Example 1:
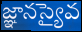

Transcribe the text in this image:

జ్ఞానస్యైవ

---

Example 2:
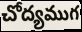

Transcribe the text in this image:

చోద్యముగ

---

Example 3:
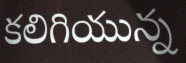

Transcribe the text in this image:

కలిగియున్న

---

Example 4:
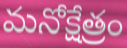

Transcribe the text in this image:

మనోక్షేత్రం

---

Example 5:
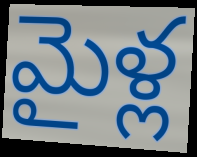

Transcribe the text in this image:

మైళ్ల